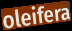
oleifera